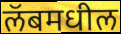
लॅबमधील